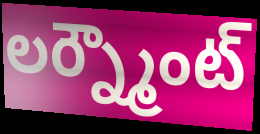
లర్న్మౌంట్